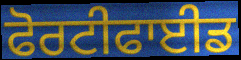
ਫੋਰਟੀਫਾਈਡ